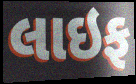
લાઇફ